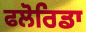
ਫਲੋਰਿਡਾ